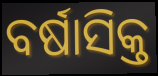
ବର୍ଷାସିକ୍ତ